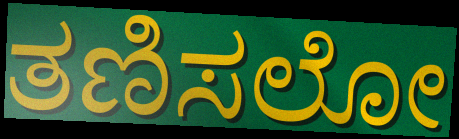
ತಣಿಸಲೋ